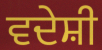
ਵਦੇਸ਼ੀ